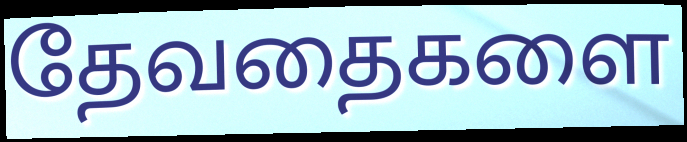
தேவதைகளை